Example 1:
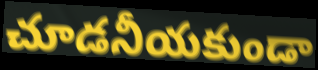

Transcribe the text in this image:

చూడనీయకుండా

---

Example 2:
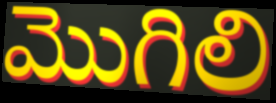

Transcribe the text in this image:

మొగిలి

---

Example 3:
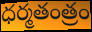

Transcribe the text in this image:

ధర్మతంత్రం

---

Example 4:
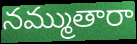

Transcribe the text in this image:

నమ్ముతారా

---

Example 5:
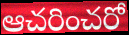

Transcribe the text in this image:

ఆచరించరో